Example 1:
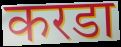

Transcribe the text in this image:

करडा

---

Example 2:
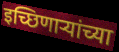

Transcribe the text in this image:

इच्छिणार्‍यांच्या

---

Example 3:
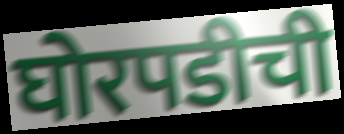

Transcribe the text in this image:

घोरपडीची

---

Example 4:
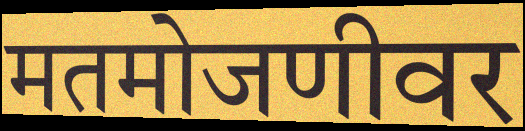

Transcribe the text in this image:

मतमोजणीवर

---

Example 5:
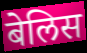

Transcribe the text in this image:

बेलिस